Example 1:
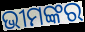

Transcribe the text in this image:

ଭୀମଙ୍କର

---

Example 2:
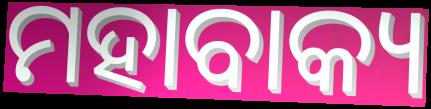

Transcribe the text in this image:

ମହାବାକ୍ୟ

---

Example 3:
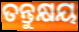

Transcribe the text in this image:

ତନ୍ତୁକ୍ଷୟ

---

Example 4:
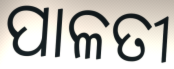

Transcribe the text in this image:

ପାଳତୀ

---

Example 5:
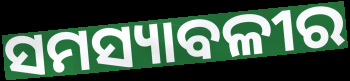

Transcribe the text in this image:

ସମସ୍ୟାବଳୀର